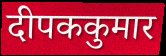
दीपककुमार